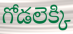
గోడలెక్కి